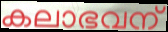
കലാഭവന്